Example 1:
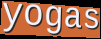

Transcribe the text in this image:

yogas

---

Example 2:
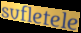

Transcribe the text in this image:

sufletele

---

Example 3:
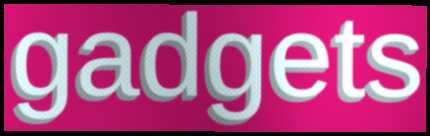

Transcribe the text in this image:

gadgets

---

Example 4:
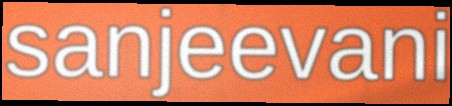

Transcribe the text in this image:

sanjeevani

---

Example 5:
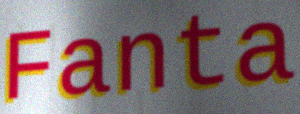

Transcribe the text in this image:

Fanta